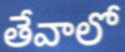
తేవాలో